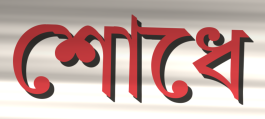
শোধে